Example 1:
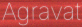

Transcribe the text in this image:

Agravat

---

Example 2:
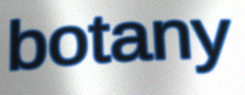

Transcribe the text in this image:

botany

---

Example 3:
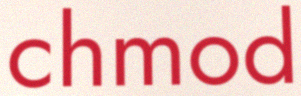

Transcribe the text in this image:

chmod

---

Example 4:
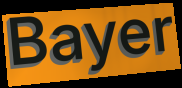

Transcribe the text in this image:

Bayer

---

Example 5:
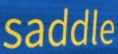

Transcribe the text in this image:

saddle